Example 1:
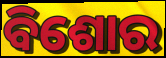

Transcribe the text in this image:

ବିଶୋର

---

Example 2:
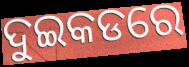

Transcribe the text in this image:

ଦୁଇକଡରେ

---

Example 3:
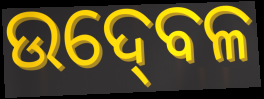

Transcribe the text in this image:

ଉଦ୍‍ବେଳ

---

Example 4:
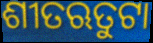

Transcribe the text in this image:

ଶୀତଋତୁଟା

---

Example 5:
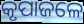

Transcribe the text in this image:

କୃପାଜଳେ